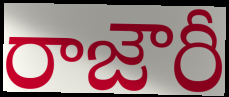
రాజౌరీ